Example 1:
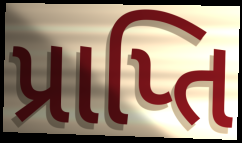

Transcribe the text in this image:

પ્રાપ્તિ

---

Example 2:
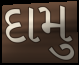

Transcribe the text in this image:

દામુ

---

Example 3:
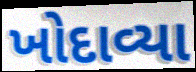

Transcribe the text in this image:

ખોદાવ્યા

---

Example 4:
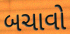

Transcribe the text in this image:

બચાવો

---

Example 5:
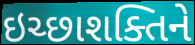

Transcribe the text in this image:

ઇચ્છાશક્તિને